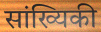
सांख्यिकी